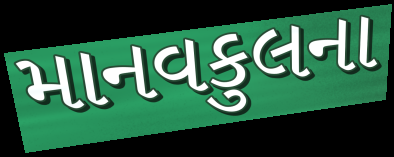
માનવકુલના